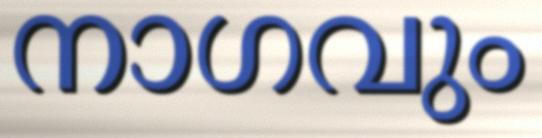
നാഗവും